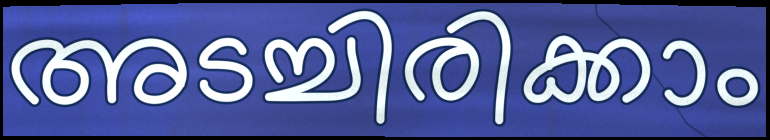
അടച്ചിരിക്കാം